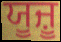
ਯੂਜ਼ੂ